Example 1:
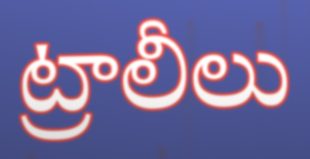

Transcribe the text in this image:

ట్రాలీలు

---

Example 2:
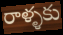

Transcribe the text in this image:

రాళ్ళకు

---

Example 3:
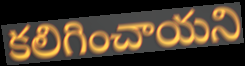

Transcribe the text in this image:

కలిగించాయని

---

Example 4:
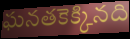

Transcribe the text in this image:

ఘనతకెక్కినది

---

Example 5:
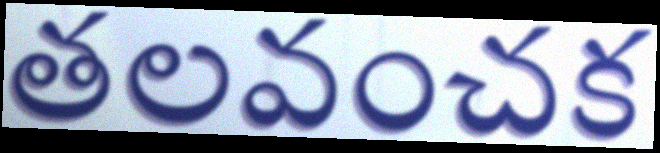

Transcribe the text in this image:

తలవంచక